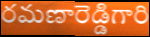
రమణారెడ్డిగారి